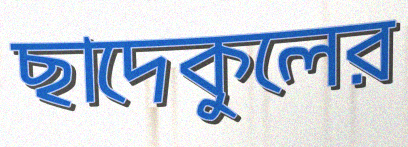
ছাদেকুলের